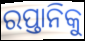
ରପ୍ତାନିକୁ